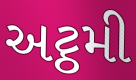
અટ્ઠમી